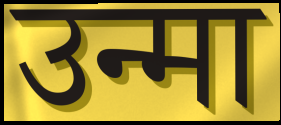
उन्मा